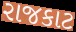
રાજકાટ